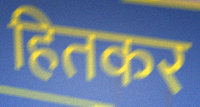
हितकर